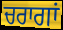
ਚਰਾਗਾਂ